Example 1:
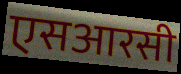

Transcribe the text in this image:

एसआरसी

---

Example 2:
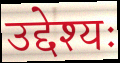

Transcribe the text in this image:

उद्देश्यः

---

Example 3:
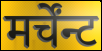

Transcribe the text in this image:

मर्चेंन्ट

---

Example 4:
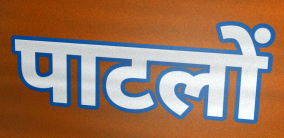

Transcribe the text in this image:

पाटलों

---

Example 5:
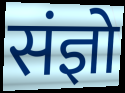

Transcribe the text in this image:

संज्ञो